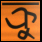
ক্রু